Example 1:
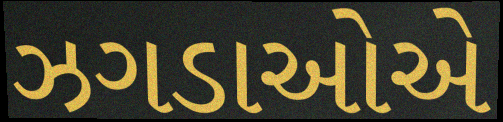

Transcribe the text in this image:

ઝગડાઓએ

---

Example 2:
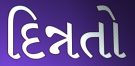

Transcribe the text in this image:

દિન્નતો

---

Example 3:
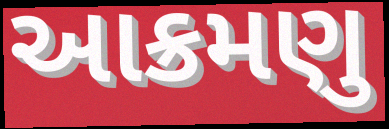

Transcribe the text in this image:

આક્રમણુ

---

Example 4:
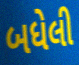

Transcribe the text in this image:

બધેલી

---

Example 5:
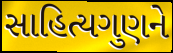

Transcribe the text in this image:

સાહિત્યગુણને